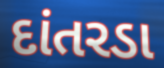
દાંતરડા